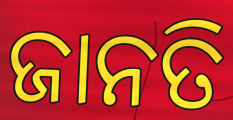
ଜାନତି